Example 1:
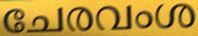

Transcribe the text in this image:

ചേരവംശ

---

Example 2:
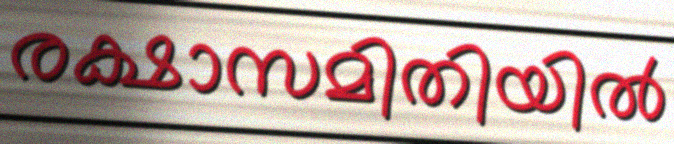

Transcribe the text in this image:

രക്ഷാസമിതിയിൽ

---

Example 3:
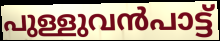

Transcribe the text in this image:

പുള്ളുവൻപാട്ട്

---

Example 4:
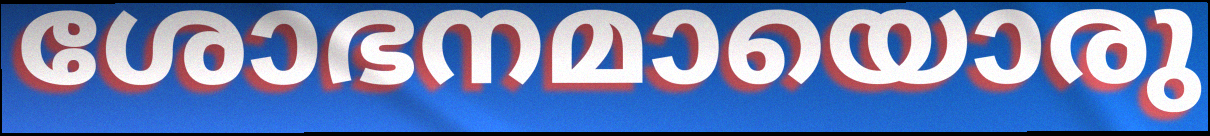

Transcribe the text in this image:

ശോഭനമായൊരു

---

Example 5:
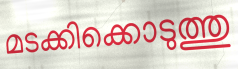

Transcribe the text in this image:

മടക്കിക്കൊടുത്തു